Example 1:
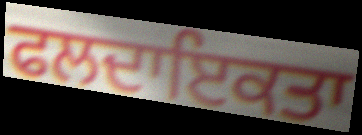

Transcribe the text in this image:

ਫਲਦਾਇਕਤਾ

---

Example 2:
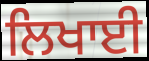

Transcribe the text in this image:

ਲਿਖਾਈ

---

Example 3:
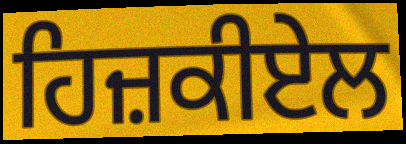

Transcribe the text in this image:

ਹਿਜ਼ਕੀਏਲ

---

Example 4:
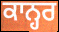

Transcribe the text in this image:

ਕਾਨ੍ਹਰ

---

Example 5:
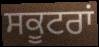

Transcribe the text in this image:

ਸਕੂਟਰਾਂ